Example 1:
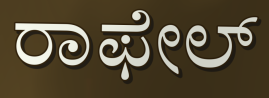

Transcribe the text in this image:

ರಾಫೇಲ್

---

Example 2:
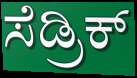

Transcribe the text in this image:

ಸೆಡ್ರಿಕ್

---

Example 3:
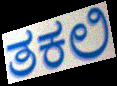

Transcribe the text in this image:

ತಕಲಿ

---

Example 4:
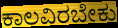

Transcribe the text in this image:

ಕಾಲವಿರಬೇಕು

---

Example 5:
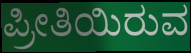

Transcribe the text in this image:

ಪ್ರೀತಿಯಿರುವ